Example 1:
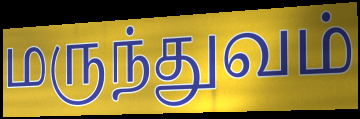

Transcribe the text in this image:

மருந்துவம்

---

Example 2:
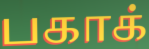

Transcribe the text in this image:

பகாக்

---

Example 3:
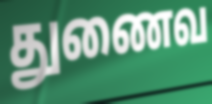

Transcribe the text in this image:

துணைவ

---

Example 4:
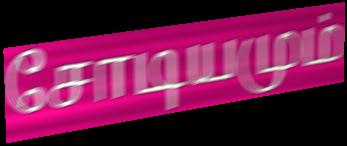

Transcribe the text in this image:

சோடியமும்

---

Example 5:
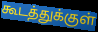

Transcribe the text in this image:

கூடத்துக்குள்